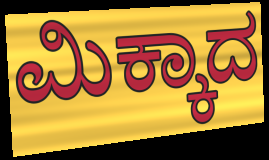
ಮಿಕ್ಕಾದ